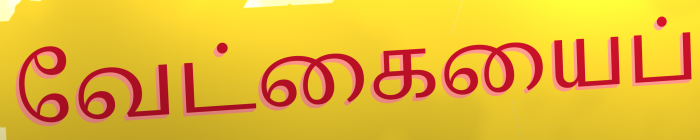
வேட்கையைப்